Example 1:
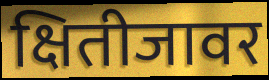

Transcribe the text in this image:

क्षितीजावर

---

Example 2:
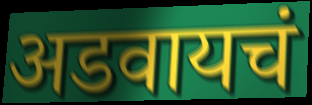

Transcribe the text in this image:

अडवायचं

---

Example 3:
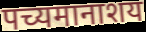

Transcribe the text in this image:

पच्यमानाशय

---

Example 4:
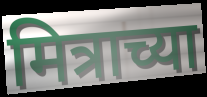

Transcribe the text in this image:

मित्राच्या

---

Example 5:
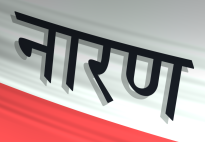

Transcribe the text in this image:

नारण